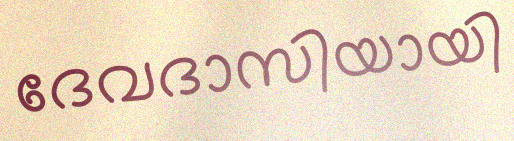
ദേവദാസിയായി